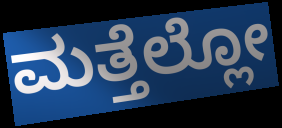
ಮತ್ತೆಲ್ಲೋ